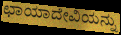
ಛಾಯಾದೇವಿಯನ್ನು